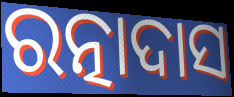
ରତ୍ନାଦାସ